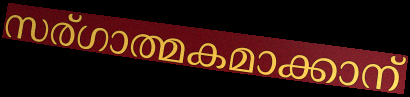
സര്ഗാത്മകമാക്കാന്